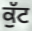
ਕੁੱਟ